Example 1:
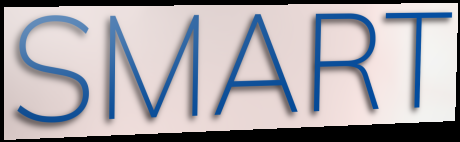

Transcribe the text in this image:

SMART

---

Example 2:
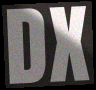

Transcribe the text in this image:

DX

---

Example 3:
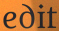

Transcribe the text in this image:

edit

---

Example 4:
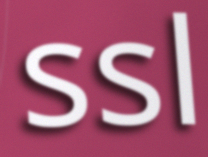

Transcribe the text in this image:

ssl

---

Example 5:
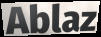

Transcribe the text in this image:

Ablaz